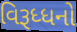
વિરૂધ્ધનો